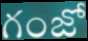
గంజో